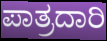
ಪಾತ್ರದಾರಿ